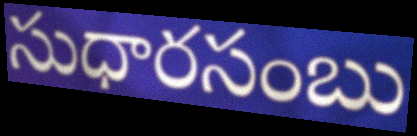
సుధారసంబు